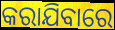
କରାଯିବାରେ